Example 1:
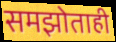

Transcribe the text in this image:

समझोताही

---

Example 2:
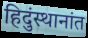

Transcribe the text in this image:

हिदुंस्थानांत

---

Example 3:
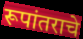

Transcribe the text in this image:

रूपांतराचे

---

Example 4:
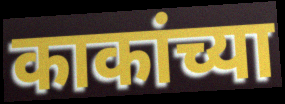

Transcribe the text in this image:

काकांच्या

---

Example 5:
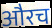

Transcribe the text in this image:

औरच